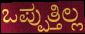
ಒಪ್ಪುತ್ತಿಲ್ಲ